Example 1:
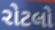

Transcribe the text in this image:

રોટલો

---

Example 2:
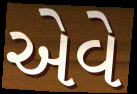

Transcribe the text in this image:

એવે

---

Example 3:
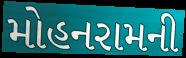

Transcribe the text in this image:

મોહનરામની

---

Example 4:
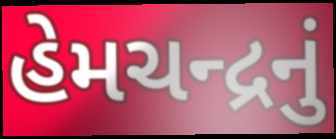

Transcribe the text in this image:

હેમચન્દ્રનું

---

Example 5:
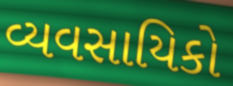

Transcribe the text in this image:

વ્યવસાયિકો